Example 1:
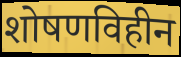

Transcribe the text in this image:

शोषणविहीन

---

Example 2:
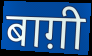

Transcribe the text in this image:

बाग़ी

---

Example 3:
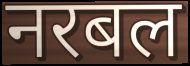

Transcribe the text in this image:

नरबल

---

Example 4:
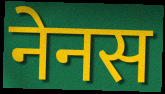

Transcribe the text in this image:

नेनस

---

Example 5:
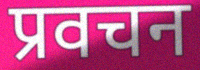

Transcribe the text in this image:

प्रवचन